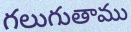
గలుగుతాము